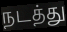
நடத்து